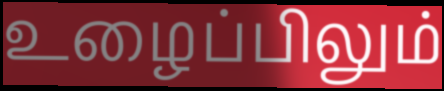
உழைப்பிலும்